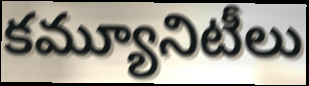
కమ్యూనిటీలు